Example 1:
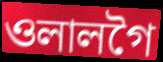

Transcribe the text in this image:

ওলালগৈ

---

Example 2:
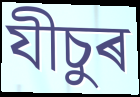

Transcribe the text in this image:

যীচুৰ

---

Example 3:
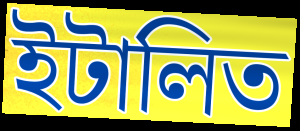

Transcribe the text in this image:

ইটালিত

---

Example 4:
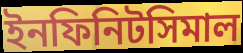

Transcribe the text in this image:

ইনফিনিটসিমাল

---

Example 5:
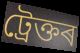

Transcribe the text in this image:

ট্ৰেক্তৰ